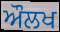
ਔਲਖ